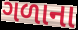
ગળાના